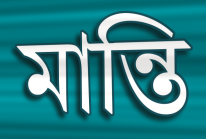
মান্তি